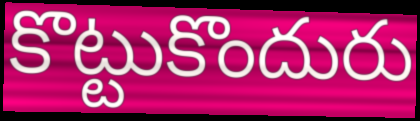
కొట్టుకొందురు